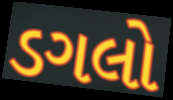
ડગલો